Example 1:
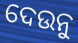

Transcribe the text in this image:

ଦେଉନୁ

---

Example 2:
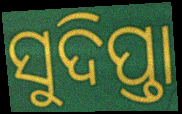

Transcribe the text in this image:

ସୁଦିପ୍ତା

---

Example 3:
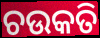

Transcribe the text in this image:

ଚଉକତି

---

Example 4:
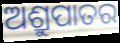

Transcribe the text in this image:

ଅଶ୍ରୁପାତର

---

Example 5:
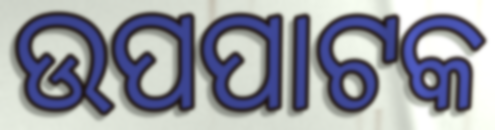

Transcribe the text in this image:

ଉପପାଟକ